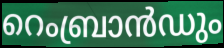
റെംബ്രാൻഡും